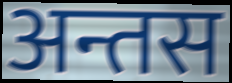
अन्तस